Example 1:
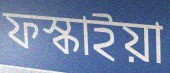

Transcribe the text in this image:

ফস্কাইয়া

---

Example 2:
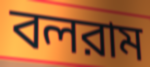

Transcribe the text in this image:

বলরাম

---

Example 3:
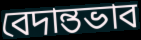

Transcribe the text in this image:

বেদান্তভাব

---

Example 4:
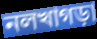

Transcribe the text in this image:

নলখাগড়া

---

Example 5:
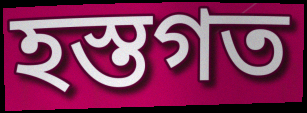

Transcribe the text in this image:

হস্তগত